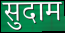
सुदाम